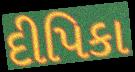
દીપિકા